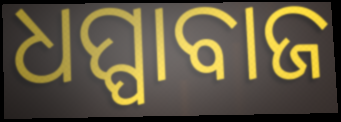
ଧପ୍ପାବାଜ